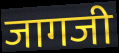
जागजी